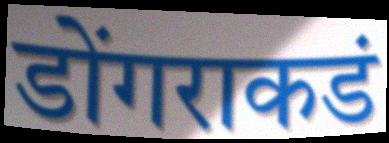
डोंगराकडं